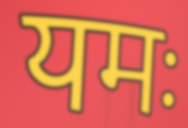
यमः